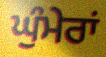
ਘੁੰਮੇਰਾਂ